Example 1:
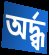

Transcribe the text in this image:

অর্দ্ধ্ব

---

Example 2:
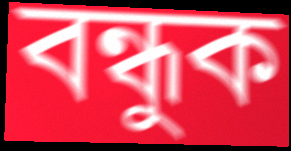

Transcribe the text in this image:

বন্ধুক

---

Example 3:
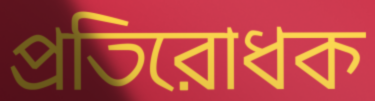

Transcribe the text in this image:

প্রতিরোধক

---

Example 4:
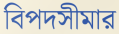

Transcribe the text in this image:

বিপদসীমার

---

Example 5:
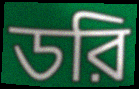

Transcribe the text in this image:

ডরি